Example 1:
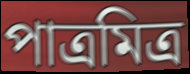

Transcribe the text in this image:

পাত্রমিত্র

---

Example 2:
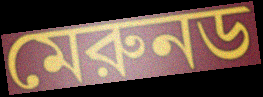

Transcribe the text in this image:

মেরুনড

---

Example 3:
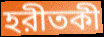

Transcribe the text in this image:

হরীতকী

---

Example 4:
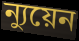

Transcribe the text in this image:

ন্যুয়েন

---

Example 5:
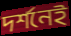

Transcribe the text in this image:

দর্শনেই